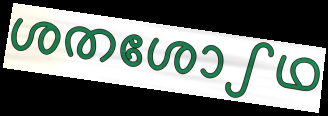
ശതശോഽഥ